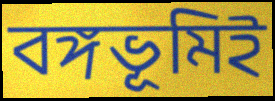
বঙ্গভূমিই